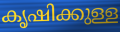
കൃഷിക്കുള്ള